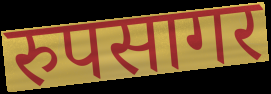
रुपसागर